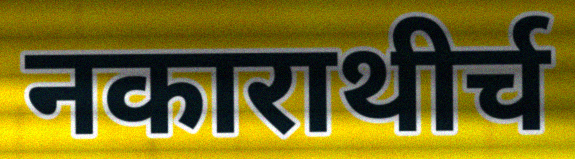
नकाराथीर्च